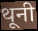
थूनी